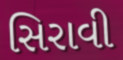
સિરાવી